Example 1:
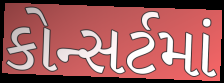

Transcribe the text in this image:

કોન્સર્ટમાં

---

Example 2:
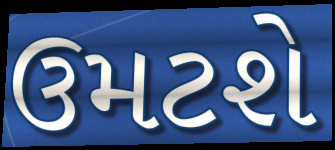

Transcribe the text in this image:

ઉમટશે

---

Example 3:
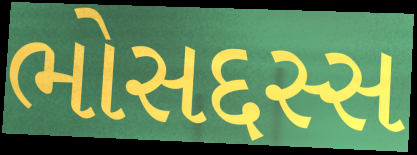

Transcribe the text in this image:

ભોસદ્દસ્સ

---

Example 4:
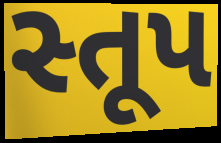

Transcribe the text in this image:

સ્તૂપ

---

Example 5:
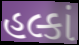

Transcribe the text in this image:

હલ્કાં